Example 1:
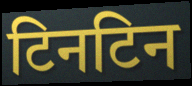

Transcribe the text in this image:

टिनटिन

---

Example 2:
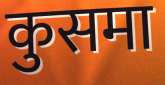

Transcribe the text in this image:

कुसमा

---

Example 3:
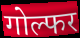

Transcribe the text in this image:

गोल्फर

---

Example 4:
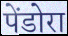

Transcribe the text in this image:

पेंडोरा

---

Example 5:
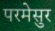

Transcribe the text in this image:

परमेसुर